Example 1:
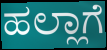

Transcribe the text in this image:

ಹಲ್ಲಾಗೆ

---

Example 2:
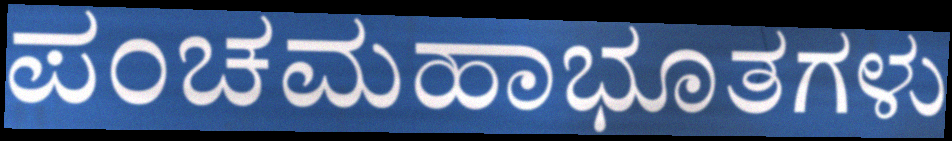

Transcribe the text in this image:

ಪಂಚಮಹಾಭೂತಗಳು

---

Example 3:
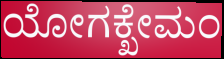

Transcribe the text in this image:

ಯೋಗಕ್ಖೇಮಂ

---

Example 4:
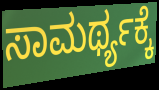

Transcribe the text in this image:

ಸಾಮರ್ಥ್ಯಕ್ಕೆ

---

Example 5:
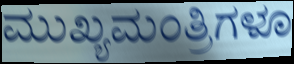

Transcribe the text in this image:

ಮುಖ್ಯಮಂತ್ರಿಗಳೂ